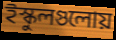
ইস্কুলগুলোয়